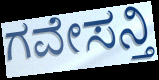
ಗವೇಸನ್ತಿ